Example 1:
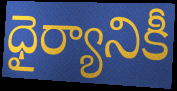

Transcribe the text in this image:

ధైర్యానికీ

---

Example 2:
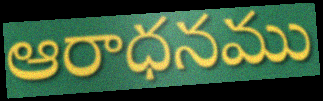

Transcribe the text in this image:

ఆరాధనము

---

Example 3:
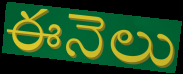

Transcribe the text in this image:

ఈనెలు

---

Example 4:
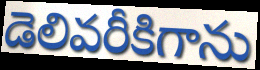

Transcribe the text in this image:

డెలివరీకిగాను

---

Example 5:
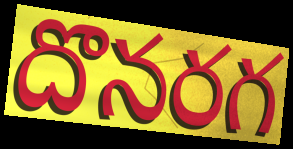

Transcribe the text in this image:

దొనరగ